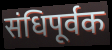
संधिपूर्वक